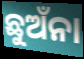
ଛୁଅଁନା